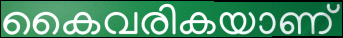
കൈവരികയാണ്